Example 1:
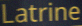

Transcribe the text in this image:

Latrine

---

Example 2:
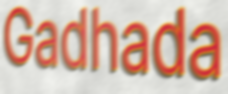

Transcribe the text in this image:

Gadhada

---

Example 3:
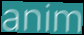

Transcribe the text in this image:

anim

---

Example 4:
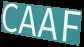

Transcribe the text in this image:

CAAF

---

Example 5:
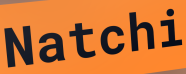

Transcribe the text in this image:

Natchi